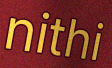
nithi